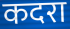
कदरा